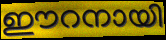
ഈറനായി